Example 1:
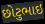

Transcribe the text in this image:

છોટુભાઇ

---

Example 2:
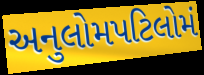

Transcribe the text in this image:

અનુલોમપટિલોમં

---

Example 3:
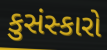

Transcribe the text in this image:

કુસંસ્કારો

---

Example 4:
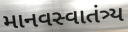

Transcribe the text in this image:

માનવસ્વાતંત્ર્ય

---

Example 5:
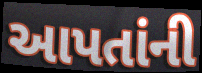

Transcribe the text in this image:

આપતાંની